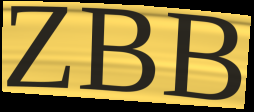
ZBB